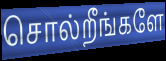
சொல்றீங்களே